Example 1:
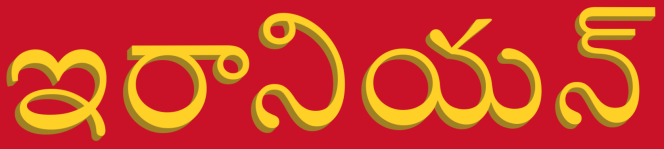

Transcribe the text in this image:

ఇరానియన్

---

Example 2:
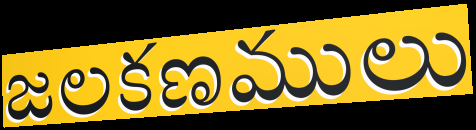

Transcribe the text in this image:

జలకణములు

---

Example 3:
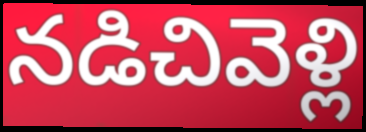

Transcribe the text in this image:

నడిచివెళ్లి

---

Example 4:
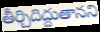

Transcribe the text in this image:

తీర్చిదిద్దుతానని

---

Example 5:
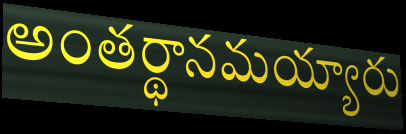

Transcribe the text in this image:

అంతర్థానమయ్యారు